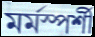
মর্মস্পর্শী